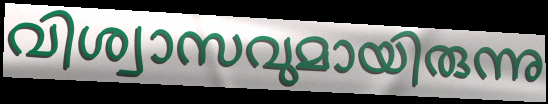
വിശ്വാസവുമായിരുന്നു